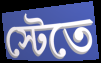
স্টেতে